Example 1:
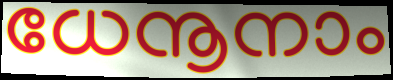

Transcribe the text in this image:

ധേനൂനാം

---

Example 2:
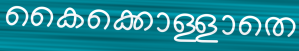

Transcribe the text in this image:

കൈക്കൊള്ളാതെ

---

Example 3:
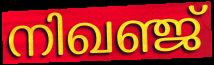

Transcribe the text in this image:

നിഖഞ്ജ്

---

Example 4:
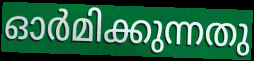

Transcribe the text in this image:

ഓർമിക്കുന്നതു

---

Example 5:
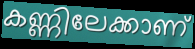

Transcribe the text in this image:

കണ്ണിലേക്കാണ്